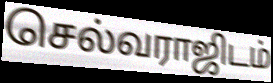
செல்வராஜிடம்